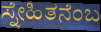
ಸ್ನೇಹಿತನೆಂಬ